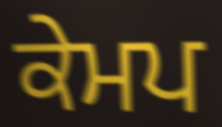
ਕੇਮਪ